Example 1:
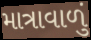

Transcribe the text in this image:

માત્રાવાળું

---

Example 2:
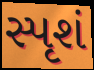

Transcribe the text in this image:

સ્પૃશં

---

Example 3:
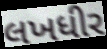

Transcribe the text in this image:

લખધીર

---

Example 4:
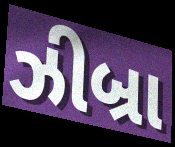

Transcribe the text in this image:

ઝીબ્રા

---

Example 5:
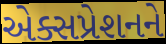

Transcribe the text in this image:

એક્સપ્રેશનને